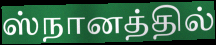
ஸ்நானத்தில்